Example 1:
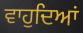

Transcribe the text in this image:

ਵਾਹੁਦਿਆਂ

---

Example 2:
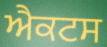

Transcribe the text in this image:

ਐਕਟਸ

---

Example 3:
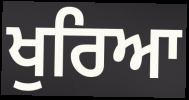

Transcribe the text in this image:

ਖੁਰਿਆ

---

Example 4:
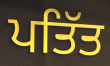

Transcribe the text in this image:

ਪਤਿੱਤ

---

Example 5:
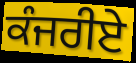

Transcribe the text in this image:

ਕੰਜਰੀਏ